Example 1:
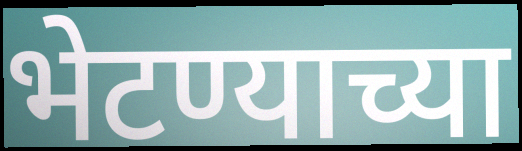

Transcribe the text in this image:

भेटण्याच्या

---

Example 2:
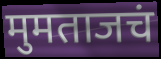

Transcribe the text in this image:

मुमताजचं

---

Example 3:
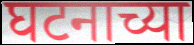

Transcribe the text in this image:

घटनाच्या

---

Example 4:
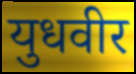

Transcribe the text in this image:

युधवीर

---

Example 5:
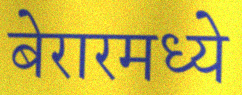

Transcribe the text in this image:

बेरारमध्ये